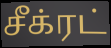
சீக்ரட்